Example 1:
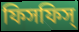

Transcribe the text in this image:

ফিসফিস্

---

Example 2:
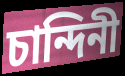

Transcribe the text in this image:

চান্দিনী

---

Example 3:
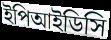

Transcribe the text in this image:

ইপিআইডিসি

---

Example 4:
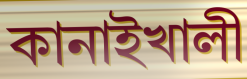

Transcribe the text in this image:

কানাইখালী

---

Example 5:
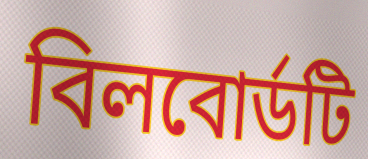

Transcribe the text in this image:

বিলবোর্ডটি